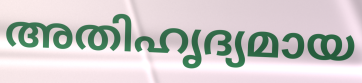
അതിഹൃദ്യമായ